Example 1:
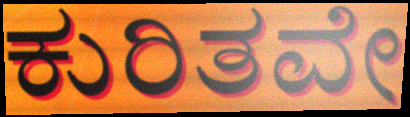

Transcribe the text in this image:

ಕುರಿತವೇ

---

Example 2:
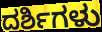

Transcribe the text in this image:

ದರ್ಶಿಗಳು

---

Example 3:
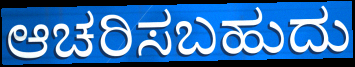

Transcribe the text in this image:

ಆಚರಿಸಬಹುದು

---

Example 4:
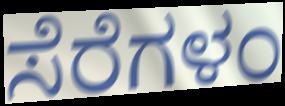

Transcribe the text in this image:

ಸೆರೆಗಳಂ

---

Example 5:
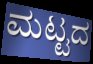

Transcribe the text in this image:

ಮಟ್ಟದ